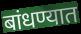
बांधण्यात